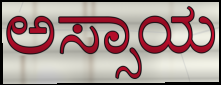
ಅಸ್ಸಾಯ